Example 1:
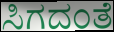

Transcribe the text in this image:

ಸಿಗದಂತೆ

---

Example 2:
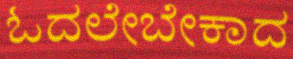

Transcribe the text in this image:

ಓದಲೇಬೇಕಾದ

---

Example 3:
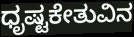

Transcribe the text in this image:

ಧೃಷ್ಟಕೇತುವಿನ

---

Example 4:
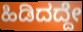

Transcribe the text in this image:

ಹಿಡಿದದ್ದೇ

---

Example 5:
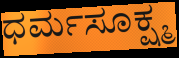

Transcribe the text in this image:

ಧರ್ಮಸೂಕ್ಷ್ಮ